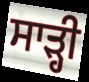
ਸਾੜ੍ਹੀ